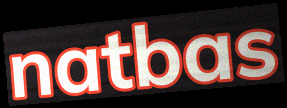
natbas